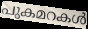
പുകമറകൾ